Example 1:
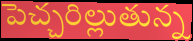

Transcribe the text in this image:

పెచ్చరిల్లుతున్న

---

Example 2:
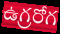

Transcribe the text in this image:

ఉగ్రరోగ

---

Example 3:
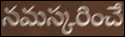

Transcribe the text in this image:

నమస్కరించే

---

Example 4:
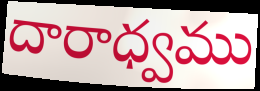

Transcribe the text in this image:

దారాధ్వము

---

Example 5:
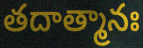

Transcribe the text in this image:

తదాత్మానః